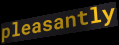
pleasantly